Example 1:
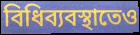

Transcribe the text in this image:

বিধিব্যবস্থাতেও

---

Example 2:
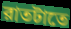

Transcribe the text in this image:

রাতটাতে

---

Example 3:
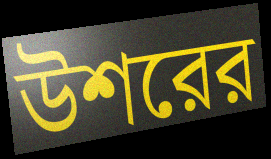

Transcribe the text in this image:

উশরের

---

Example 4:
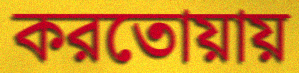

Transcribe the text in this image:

করতোয়ায়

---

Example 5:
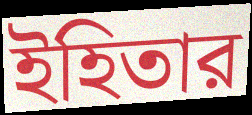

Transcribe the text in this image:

ইহিতার